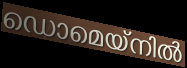
ഡൊമെയ്നിൽ